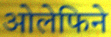
ओलेफिने